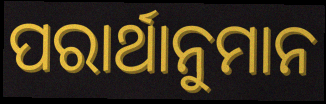
ପରାର୍ଥାନୁମାନ